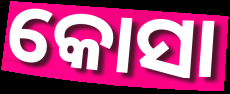
କୋସା